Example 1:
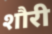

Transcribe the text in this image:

शौरी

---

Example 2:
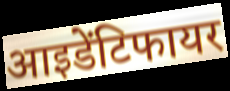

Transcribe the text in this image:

आइडेंटिफायर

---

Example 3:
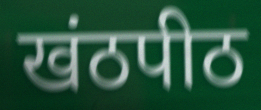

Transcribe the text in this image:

खंठपीठ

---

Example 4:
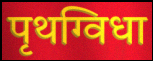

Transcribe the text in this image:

पृथग्विधा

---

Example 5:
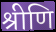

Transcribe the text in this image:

श्रीणि